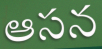
ఆసన